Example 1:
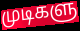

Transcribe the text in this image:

முடிகளு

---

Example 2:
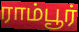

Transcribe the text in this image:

ராம்பூர்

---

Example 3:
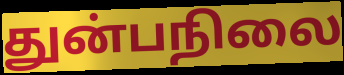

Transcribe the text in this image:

துன்பநிலை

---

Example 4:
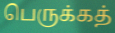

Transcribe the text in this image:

பெருக்கத்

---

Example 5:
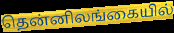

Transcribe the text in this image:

தென்னிலங்கையில்